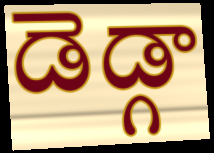
డెడ్గా